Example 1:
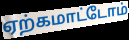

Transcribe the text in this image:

ஏற்கமாட்டோம்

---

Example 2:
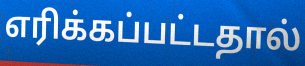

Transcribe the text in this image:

எரிக்கப்பட்டதால்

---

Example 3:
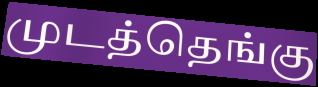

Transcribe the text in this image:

முடத்தெங்கு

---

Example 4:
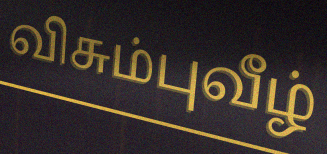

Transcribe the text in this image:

விசும்புவீழ்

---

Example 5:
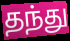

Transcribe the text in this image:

தந்து